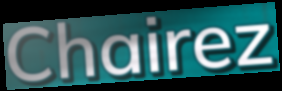
Chairez